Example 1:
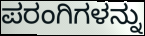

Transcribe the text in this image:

ಪರಂಗಿಗಳನ್ನು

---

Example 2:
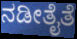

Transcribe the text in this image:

ನಡೀತೈತೆ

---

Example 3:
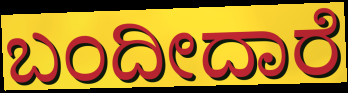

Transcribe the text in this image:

ಬಂದೀದಾರೆ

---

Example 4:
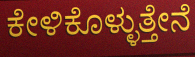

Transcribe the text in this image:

ಕೇಳಿಕೊಳ್ಳುತ್ತೇನೆ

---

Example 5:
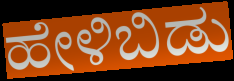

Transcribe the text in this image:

ಹೇಳಿಬಿಡು